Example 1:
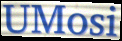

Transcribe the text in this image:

UMosi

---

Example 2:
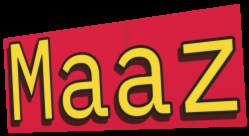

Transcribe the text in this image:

Maaz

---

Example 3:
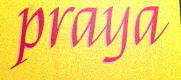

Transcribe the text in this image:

praya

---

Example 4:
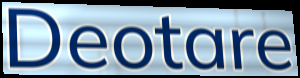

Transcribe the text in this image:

Deotare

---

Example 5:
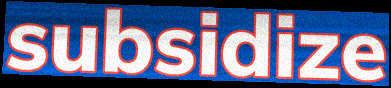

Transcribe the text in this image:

subsidize